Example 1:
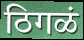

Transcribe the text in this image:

ठिगळं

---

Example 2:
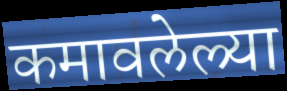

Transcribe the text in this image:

कमावलेल्या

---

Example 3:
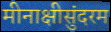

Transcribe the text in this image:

मीनाक्षीसुंदरम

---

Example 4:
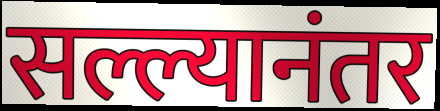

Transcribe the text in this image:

सल्ल्यानंतर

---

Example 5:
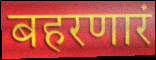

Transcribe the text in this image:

बहरणारं